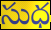
సుధ